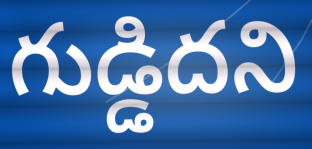
గుడ్డిదని